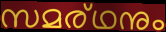
സമര്ഥനും